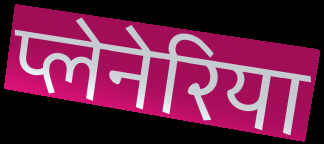
प्लेनेरिया